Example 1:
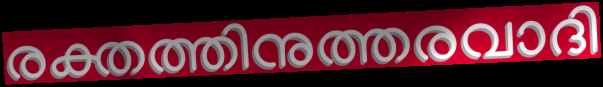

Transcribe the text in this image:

രക്തത്തിനുത്തരവാദി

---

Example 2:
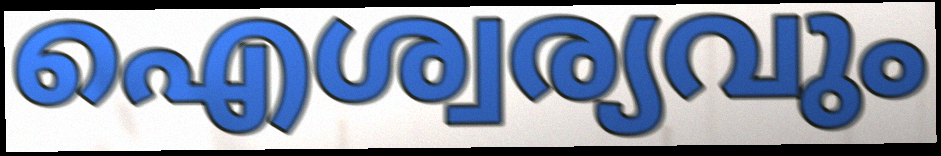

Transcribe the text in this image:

ഐശ്വര്യവും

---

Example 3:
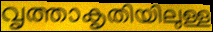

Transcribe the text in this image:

വൃത്താകൃതിയിലുള്ള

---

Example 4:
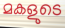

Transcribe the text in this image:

മകളുടെ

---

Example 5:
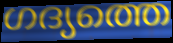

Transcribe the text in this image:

ഗദ്യത്തെ